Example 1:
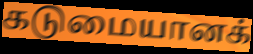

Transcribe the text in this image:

கடுமையானக்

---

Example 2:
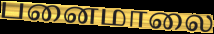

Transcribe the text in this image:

பனைமாலை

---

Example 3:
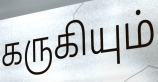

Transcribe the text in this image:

கருகியும்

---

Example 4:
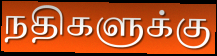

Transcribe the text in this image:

நதிகளுக்கு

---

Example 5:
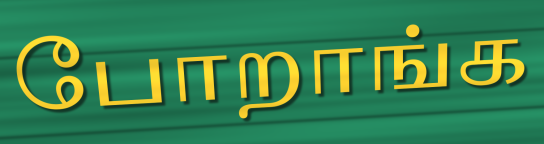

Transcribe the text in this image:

போறாங்க